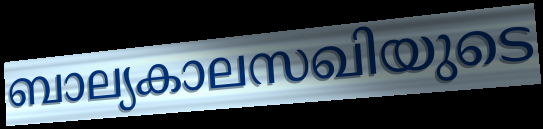
ബാല്യകാലസഖിയുടെ